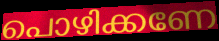
പൊഴിക്കണേ